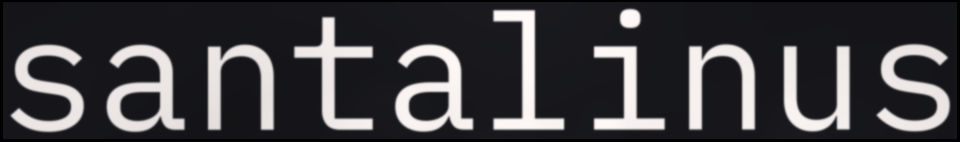
santalinus